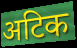
अटिक